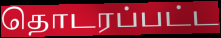
தொடரப்பட்ட